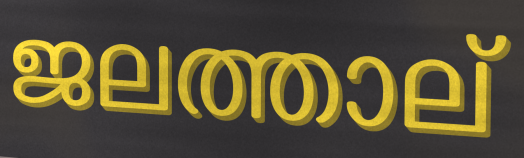
ജലത്താല്